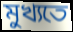
মুখ্যতে